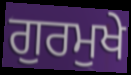
ਗੁਰਮੁਖੇ